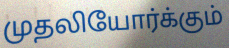
முதலியோர்க்கும்